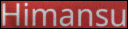
Himansu